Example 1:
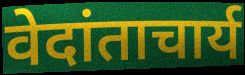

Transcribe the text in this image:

वेदांताचार्य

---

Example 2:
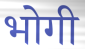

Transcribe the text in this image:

भोगी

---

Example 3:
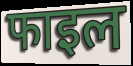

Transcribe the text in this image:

फाइल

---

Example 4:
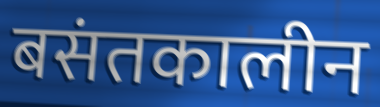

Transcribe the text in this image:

बसंतकालीन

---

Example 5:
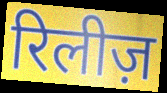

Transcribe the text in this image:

रिलीज़